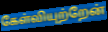
கேள்வியுற்றேன்